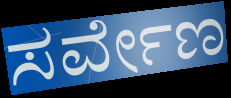
ಸರ್ವೇಣ